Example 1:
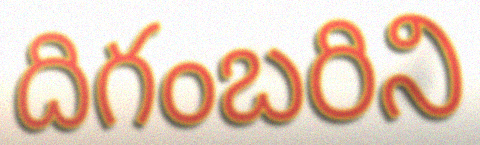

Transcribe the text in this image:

దిగంబరిని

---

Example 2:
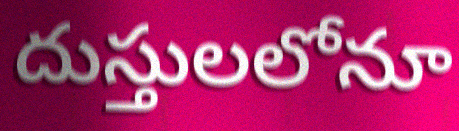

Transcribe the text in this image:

దుస్తులలోనూ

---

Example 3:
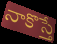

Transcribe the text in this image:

నాకొస్తే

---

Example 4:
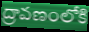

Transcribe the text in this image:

ద్రావణంలోకి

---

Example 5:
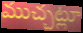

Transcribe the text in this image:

ముచ్చట్లూ